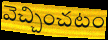
వెచ్చించటం